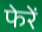
फेरें